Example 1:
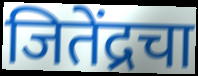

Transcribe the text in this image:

जितेंद्रचा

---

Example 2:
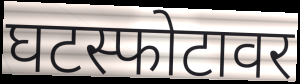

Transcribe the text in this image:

घटस्फोटावर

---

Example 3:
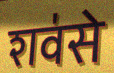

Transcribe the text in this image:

शव॑से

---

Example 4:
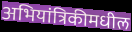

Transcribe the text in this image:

अभियांत्रिकीमधील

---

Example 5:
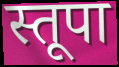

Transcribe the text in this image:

स्तूपा